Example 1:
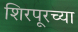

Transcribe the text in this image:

शिरपूरच्या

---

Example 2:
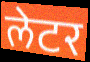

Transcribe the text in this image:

लेटर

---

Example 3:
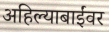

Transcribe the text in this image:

अहिल्याबाईंवर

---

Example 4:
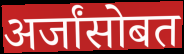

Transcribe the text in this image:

अर्जांसोबत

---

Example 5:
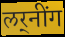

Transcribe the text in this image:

लर्नींग